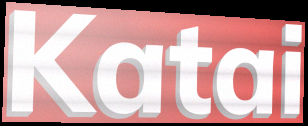
Katai